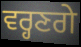
ਵਰ੍ਹਣਗੇ